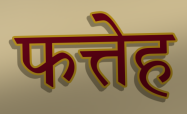
फत्तेह